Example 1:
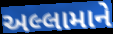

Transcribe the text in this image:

અલ્લામાને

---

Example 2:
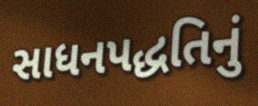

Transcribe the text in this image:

સાધનપદ્ધતિનું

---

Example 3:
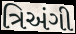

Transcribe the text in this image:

ત્રિઅંગી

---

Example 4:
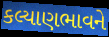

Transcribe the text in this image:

કલ્યાણભાવને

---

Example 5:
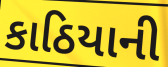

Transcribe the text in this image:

કાઠિયાની